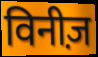
विनीज़